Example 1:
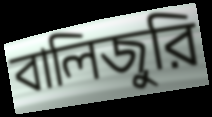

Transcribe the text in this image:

বালিজুরি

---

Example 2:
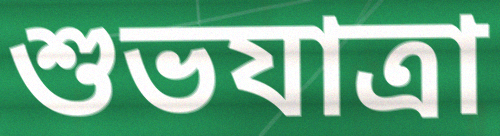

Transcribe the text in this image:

শুভযাত্রা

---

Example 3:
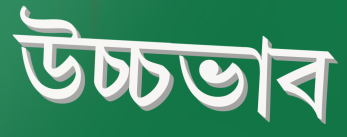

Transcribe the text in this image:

উচ্চভাব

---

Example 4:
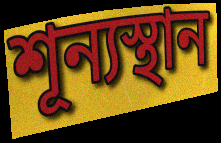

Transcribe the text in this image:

শূন্যস্থান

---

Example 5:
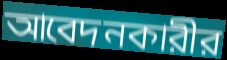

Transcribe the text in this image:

আবেদনকারীর